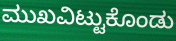
ಮುಖವಿಟ್ಟುಕೊಂಡು